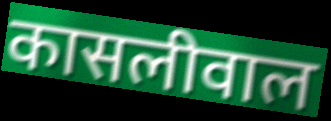
कासलीवाल